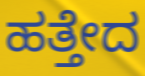
ಹತ್ತೇದ